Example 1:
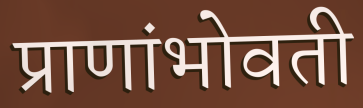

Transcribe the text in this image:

प्राणांभोवती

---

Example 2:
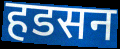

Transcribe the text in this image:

हडसन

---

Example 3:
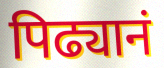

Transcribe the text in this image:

पिढ्यानं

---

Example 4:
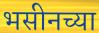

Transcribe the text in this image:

भसीनच्या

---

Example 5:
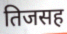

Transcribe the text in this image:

तिजसह